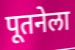
पूतनेला